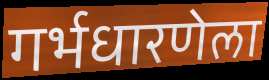
गर्भधारणेला